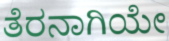
ತೆರನಾಗಿಯೇ